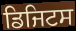
ਡਿਜਿਟਸ